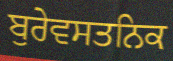
ਬੁਰੇਵਸਤਨਿਕ